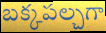
బక్కపల్చగా